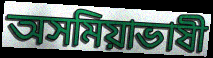
অসমিয়াভাষী